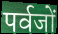
पर्वजों